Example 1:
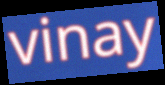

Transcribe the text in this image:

vinay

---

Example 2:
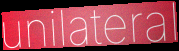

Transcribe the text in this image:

unilateral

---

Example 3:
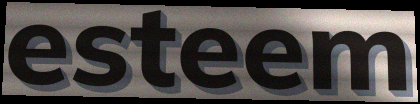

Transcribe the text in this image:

esteem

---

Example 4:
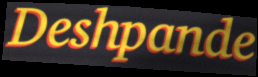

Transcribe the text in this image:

Deshpande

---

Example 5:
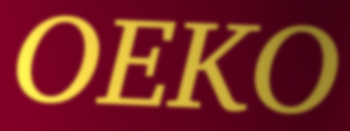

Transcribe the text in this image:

OEKO